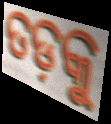
ତଡ଼କୁ